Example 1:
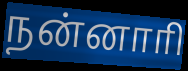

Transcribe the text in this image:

நன்னாரி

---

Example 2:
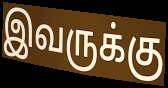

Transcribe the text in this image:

இவருக்கு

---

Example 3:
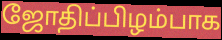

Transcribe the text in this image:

ஜோதிப்பிழம்பாக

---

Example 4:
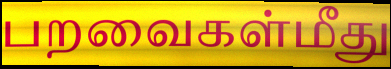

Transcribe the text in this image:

பறவைகள்மீது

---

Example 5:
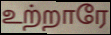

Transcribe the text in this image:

உற்றாரே